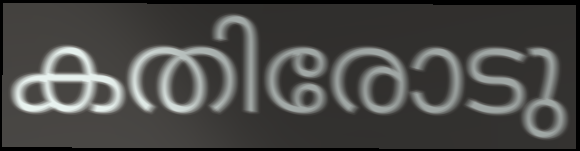
കതിരോടു